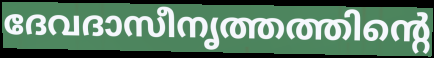
ദേവദാസീനൃത്തത്തിന്റെ